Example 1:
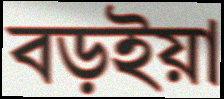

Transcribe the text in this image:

বড়ইয়া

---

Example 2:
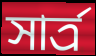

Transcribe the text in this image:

সার্ত্র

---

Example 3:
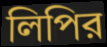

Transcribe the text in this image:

লিপির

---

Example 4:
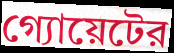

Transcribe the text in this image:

গ্যোয়েটের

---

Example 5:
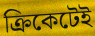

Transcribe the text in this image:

ক্রিকেটেই